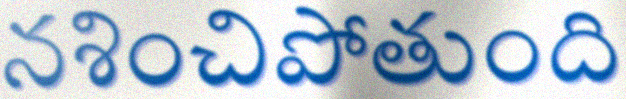
నశించిపోతుంది